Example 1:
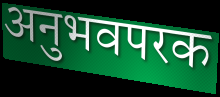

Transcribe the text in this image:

अनुभवपरक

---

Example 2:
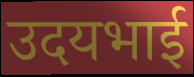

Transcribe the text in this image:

उदयभाई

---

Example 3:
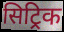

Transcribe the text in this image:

सिट्रिक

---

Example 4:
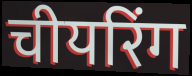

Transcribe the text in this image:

चीयरिंग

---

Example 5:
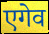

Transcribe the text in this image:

एगेव